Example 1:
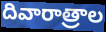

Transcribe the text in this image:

దివారాత్రాల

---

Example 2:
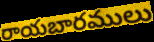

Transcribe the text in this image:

రాయబారములు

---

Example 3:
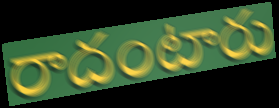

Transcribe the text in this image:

రాదంటారు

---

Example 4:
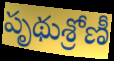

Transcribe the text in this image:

పృథుశ్రోణీ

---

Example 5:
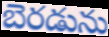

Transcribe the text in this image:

బెరడును